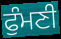
ਫੁੰਮਣੀ